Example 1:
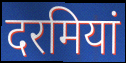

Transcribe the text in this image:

दरमियां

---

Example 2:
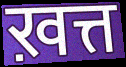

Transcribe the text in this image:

ख़त्त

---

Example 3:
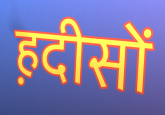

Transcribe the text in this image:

ह़दीसों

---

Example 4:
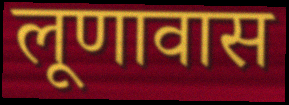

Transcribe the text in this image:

लूणावास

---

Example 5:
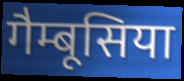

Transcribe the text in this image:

गैम्बूसिया